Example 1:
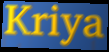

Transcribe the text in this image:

Kriya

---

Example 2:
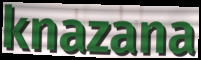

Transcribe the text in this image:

knazana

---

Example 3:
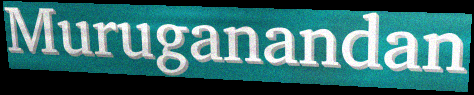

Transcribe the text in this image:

Muruganandan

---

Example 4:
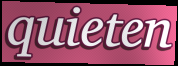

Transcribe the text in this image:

quieten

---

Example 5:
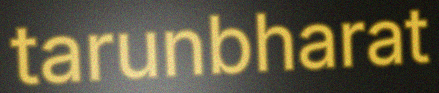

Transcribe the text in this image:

tarunbharat